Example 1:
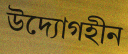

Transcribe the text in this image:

উদ্যোগহীন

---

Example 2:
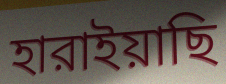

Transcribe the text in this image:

হারাইয়াছি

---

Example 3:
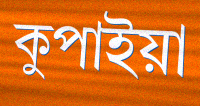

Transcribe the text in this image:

কুপাইয়া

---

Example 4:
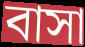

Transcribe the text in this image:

বাসা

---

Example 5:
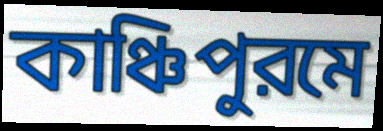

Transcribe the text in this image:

কাঞ্চিপুরমে